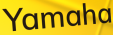
Yamaha